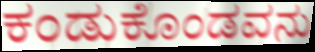
ಕಂಡುಕೊಂಡವನು